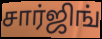
சார்ஜிங்